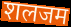
शलजम